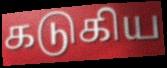
கடுகிய